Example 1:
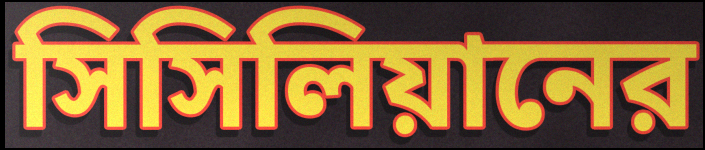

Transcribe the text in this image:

সিসিলিয়ানের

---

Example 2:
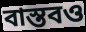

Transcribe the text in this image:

বাস্তবও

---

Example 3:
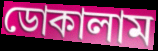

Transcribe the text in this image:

ডোকালাম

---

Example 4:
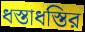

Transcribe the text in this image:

ধস্তাধস্তির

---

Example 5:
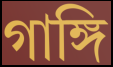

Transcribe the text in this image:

গাঙ্গি